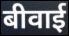
बीवाई